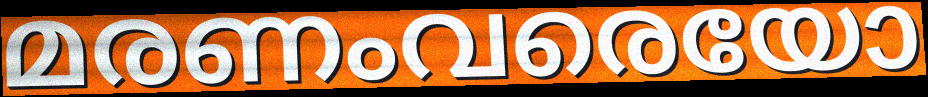
മരണംവരെയോ